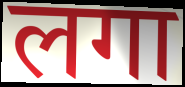
लगा